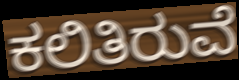
ಕಲಿತಿರುವೆ